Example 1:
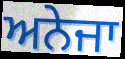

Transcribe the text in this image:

ਅਨੇਜਾ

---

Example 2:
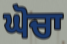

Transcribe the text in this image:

ਘੋਚਾ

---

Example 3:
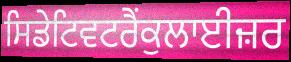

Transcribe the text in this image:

ਸਿਡੇਟਿਵਟਰੈਂਕੁਲਾਈਜ਼ਰ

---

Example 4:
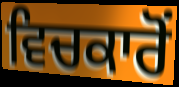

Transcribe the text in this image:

ਵਿਚਕਾਰੋਂ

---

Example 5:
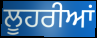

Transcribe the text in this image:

ਲੂਹਰੀਆਂ